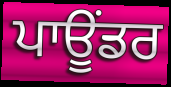
ਪਾਊਂਡਰ